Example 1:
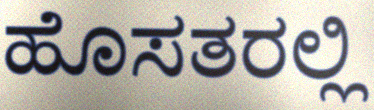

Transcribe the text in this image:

ಹೊಸತರಲ್ಲಿ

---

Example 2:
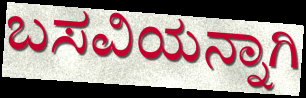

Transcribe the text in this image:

ಬಸವಿಯನ್ನಾಗಿ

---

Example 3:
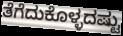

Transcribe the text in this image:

ತೆಗೆದುಕೊಳ್ಳದಷ್ಟು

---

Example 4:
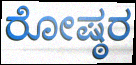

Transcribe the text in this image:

ರೋಷ್ಠರ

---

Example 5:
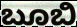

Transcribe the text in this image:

ಬೂಬಿ